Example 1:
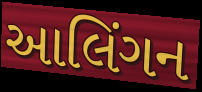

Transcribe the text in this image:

આલિંગન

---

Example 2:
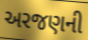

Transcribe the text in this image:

અરજણની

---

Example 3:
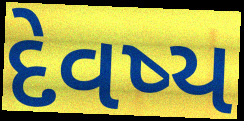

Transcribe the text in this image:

દેવષ્ય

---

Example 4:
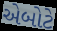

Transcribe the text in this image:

એબોટે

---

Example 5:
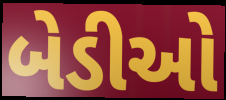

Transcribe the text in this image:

બેડીઓ